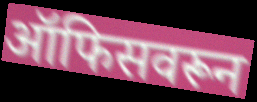
ऑफिसवरून